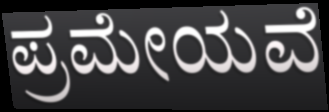
ಪ್ರಮೇಯವೆ